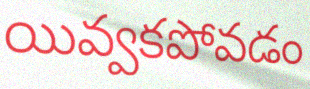
యివ్వకపోవడం